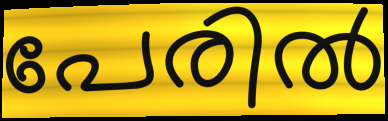
പേരിൽ